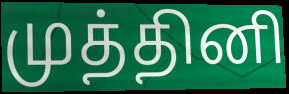
முத்தினி